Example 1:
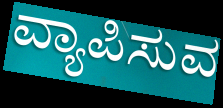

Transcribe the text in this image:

ವ್ಯಾಪಿಸುವ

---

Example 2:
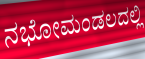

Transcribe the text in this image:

ನಭೋಮಂಡಲದಲ್ಲಿ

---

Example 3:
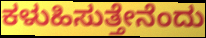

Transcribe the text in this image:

ಕಳುಹಿಸುತ್ತೇನೆಂದು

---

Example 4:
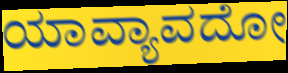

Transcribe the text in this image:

ಯಾವ್ಯಾವದೋ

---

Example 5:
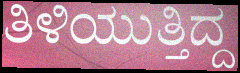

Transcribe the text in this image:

ತಿಳಿಯುತ್ತಿದ್ದ